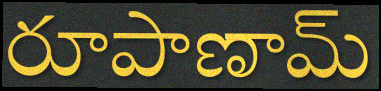
రూపాణామ్